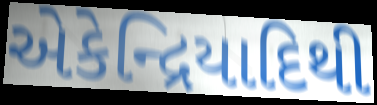
એકેન્દ્રિયાદિથી